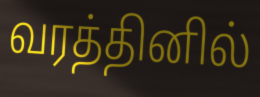
வரத்தினில்